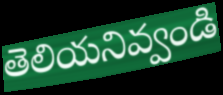
తెలియనివ్వండి